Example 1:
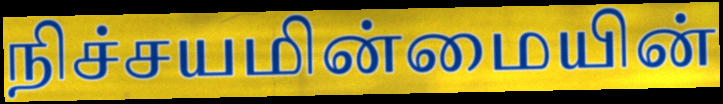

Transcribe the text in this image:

நிச்சயமின்மையின்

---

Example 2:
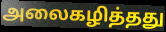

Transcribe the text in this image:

அலைகழித்தது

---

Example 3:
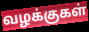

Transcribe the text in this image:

வழக்குகள்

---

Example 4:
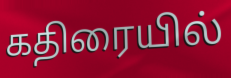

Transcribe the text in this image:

கதிரையில்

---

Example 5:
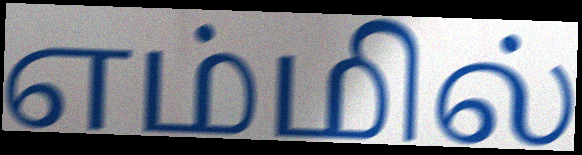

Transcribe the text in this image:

எம்மில்